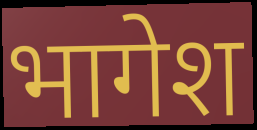
भागेश